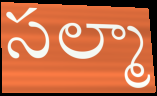
సల్మా